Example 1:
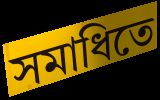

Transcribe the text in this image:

সমাধিতে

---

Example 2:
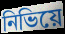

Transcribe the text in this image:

নিভিয়ে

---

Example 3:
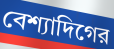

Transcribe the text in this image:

বেশ্যাদিগের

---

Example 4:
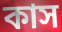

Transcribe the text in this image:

কাস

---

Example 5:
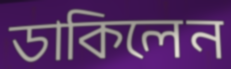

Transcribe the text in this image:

ডাকিলেন